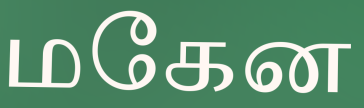
மகேன